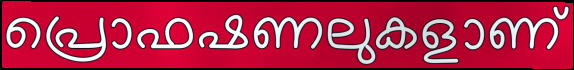
പ്രൊഫഷണലുകളാണ്